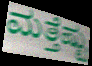
ಮತ್ತೆಷ್ಟು